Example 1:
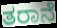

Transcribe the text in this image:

ತರಾನೆ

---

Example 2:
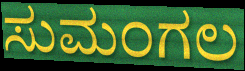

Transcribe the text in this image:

ಸುಮಂಗಲ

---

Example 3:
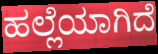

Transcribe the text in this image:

ಹಲ್ಲೆಯಾಗಿದೆ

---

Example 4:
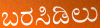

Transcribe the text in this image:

ಬರಸಿಡಿಲು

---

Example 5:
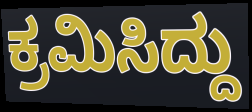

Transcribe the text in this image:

ಕ್ರಮಿಸಿದ್ದು